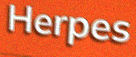
Herpes